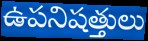
ఉపనిషత్తులు